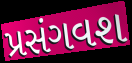
પ્રસંગવશ